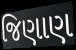
જિણાણ